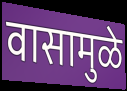
वासामुळे